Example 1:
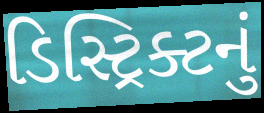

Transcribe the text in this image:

ડિસ્ટ્રિક્ટનું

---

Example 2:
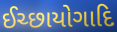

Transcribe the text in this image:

ઈચ્છાયોગાદિ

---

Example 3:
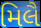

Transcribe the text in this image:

મિલૈ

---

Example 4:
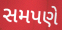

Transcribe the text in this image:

સમપણે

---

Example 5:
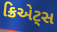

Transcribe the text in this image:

ક્રિએટ્સ